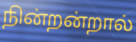
நின்றன்றால்